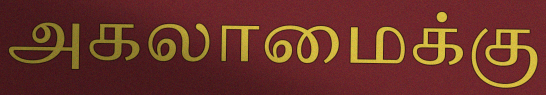
அகலாமைக்கு